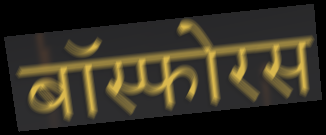
बॉस्फोरस